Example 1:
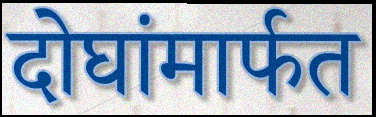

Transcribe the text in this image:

दोघांमार्फत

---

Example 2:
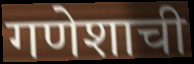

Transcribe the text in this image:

गणेशाची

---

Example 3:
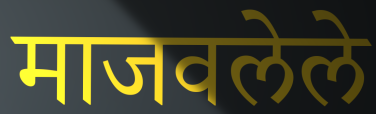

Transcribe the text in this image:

माजवलेले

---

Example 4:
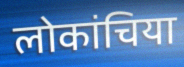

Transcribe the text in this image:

लोकांचिया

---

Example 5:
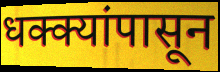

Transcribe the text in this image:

धक्क्यांपासून